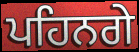
ਪਹਿਨਗੇ